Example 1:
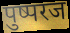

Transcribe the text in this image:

पुष्परज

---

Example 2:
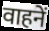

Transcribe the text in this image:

वाहनें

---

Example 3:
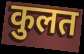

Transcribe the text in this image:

कुलत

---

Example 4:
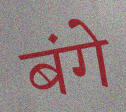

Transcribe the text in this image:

बंगे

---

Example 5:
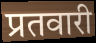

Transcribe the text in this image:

प्रतवारी